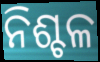
ନିଶ୍ଚଳ